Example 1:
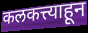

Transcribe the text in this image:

कलकत्त्याहून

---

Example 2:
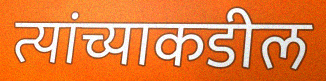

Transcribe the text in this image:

त्यांच्याकडील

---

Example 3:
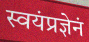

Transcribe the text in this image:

स्वयंप्रज्ञेनं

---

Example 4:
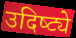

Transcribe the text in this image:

उदिष्ट्ये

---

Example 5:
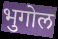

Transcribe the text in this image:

भुगोल